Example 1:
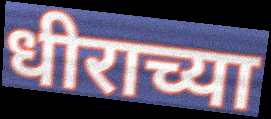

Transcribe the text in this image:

धीराच्या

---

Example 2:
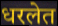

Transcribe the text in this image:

धरलेत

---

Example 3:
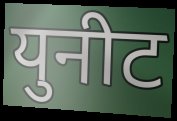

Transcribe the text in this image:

युनीट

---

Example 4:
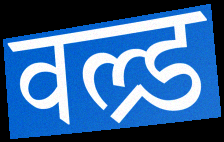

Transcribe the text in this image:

वल्र्ड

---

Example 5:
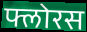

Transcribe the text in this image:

फ्लोरस